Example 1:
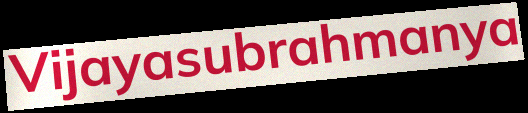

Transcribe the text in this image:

Vijayasubrahmanya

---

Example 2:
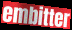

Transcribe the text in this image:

embitter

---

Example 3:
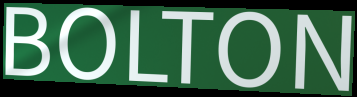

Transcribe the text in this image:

BOLTON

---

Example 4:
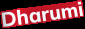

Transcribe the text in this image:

Dharumi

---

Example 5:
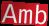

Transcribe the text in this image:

Amb